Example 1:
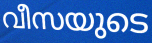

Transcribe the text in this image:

വീസയുടെ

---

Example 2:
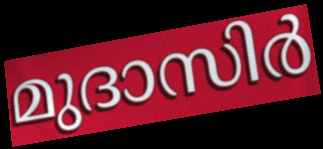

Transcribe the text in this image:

മുദാസിർ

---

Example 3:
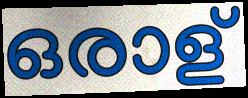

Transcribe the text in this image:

ഒരാള്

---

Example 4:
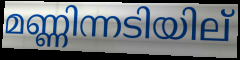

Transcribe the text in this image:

മണ്ണിന്നടിയില്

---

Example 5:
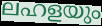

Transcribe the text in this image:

ലഹളയും